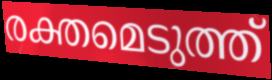
രക്തമെടുത്ത്